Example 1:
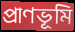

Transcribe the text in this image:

প্রাণভূমি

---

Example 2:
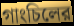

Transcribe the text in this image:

গাংচিলের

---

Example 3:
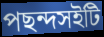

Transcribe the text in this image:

পছন্দসইটি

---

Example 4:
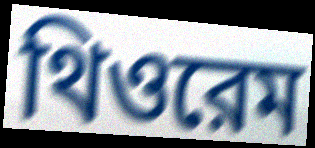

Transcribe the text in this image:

থিওরেম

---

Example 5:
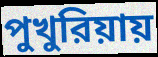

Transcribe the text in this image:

পুখুরিয়ায়